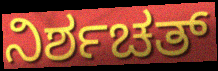
ನಿರ್ಶಚತ್